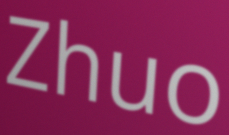
Zhuo